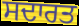
ਸਦਾਰਤ